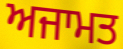
ਅਜਾਮਤ